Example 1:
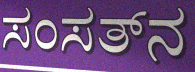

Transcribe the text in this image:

ಸಂಸತ್‌ನ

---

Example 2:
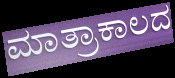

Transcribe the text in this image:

ಮಾತ್ರಾಕಾಲದ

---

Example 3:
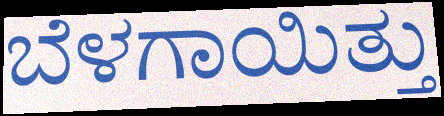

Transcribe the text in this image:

ಬೆಳಗಾಯಿತ್ತು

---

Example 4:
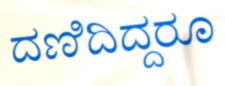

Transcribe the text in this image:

ದಣಿದಿದ್ದರೂ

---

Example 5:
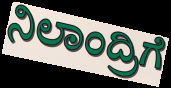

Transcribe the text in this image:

ನಿಲಾಂದ್ರಿಗೆ